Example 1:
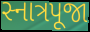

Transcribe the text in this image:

સ્નાત્રપૂજા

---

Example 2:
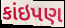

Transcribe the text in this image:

કાંઇપણ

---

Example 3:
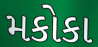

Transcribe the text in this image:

મકોકા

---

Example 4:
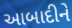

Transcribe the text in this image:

આબાદીને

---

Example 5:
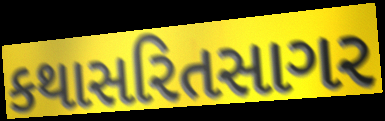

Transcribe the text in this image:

કથાસરિતસાગર